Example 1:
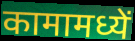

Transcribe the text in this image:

कामामध्यें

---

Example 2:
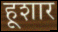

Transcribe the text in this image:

हूशार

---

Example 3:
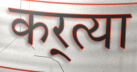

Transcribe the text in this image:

कर्त्या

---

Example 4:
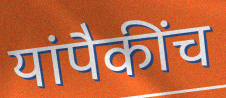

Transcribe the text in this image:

यांपैकींच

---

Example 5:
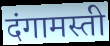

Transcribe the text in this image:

दंगामस्ती